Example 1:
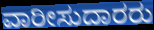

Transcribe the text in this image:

ವಾರೀಸುದಾರರು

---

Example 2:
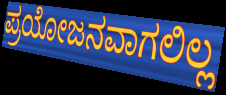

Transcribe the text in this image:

ಪ್ರಯೋಜನವಾಗಲಿಲ್ಲ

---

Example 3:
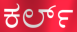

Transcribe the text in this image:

ಕರ್ಲ್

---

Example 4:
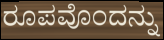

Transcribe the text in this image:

ರೂಪವೊಂದನ್ನು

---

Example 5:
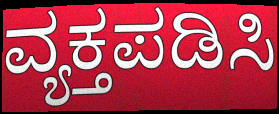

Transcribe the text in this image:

ವ್ಯಕ್ತಪಡಿಸಿ